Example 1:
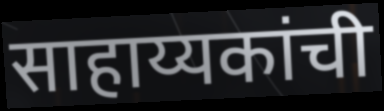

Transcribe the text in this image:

साहाय्यकांची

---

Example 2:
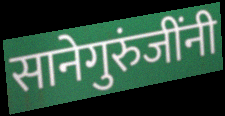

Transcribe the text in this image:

सानेगुरुंजींनी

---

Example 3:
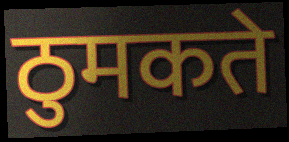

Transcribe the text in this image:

ठुमकते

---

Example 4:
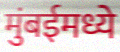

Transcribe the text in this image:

मुंबईमध्ये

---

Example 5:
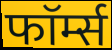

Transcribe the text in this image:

फॉर्म्स